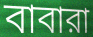
বাবারা